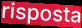
risposta